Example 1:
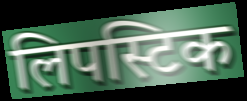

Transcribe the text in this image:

लिपस्टिक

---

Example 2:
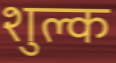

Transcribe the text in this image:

शुल्‍क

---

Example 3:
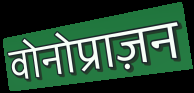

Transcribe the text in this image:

वोनोप्राज़न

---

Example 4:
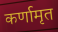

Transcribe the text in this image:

कर्णामृत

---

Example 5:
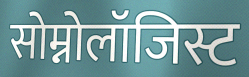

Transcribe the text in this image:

सोम्नोलॉजिस्ट